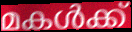
മകൾക്ക്